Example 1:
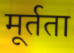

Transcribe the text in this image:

मूर्तता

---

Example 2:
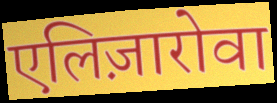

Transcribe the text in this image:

एलिज़ारोवा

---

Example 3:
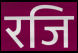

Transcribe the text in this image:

रजि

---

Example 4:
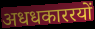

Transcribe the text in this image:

अधधकाररयों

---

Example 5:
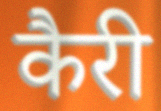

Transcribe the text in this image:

कैरी